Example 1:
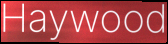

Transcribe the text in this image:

Haywood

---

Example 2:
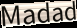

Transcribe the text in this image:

Madad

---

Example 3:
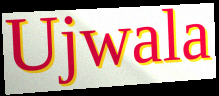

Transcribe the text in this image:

Ujwala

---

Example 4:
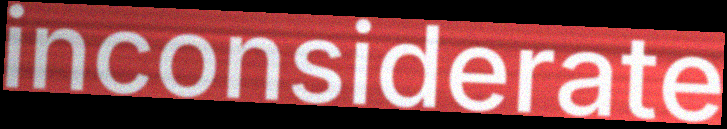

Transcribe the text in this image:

inconsiderate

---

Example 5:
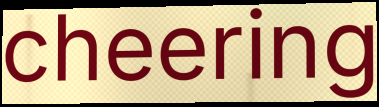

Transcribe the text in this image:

cheering